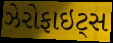
ઝેરોફાઇટ્સ